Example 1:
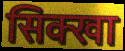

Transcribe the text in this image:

सिक्खा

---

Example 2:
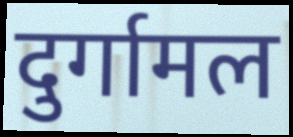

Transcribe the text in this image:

दुर्गामल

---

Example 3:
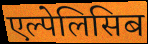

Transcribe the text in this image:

एल्पेलिसिब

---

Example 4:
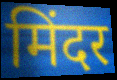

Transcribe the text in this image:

मिंदर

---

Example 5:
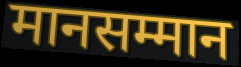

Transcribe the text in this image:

मानसम्मान